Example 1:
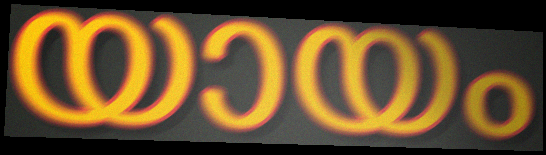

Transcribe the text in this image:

യായം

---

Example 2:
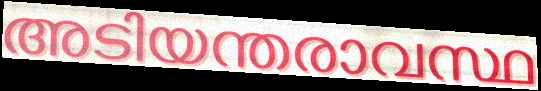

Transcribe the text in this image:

അടിയന്തരാവസ്ഥ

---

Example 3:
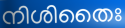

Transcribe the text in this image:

നിശിതൈഃ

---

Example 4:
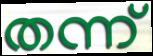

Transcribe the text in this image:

തന്ന്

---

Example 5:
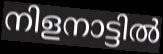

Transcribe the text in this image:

നിളനാട്ടിൽ